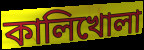
কালিখোলা